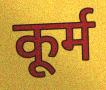
कूर्म